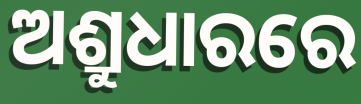
ଅଶ୍ରୁଧାରରେ